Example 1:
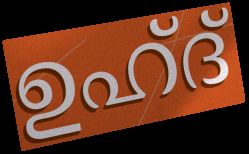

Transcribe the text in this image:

ഉഹ്ദ്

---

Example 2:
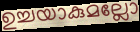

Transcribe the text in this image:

ഉച്ചയാകുമല്ലോ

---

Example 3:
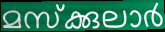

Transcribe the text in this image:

മസ്ക്കുലാർ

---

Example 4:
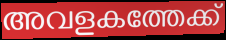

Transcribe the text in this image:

അവളകത്തേക്ക്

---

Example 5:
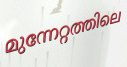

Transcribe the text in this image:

മുന്നേറ്റത്തിലെ